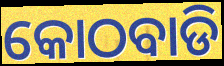
କୋଠବାଡି